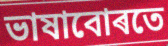
ভাষাবোৰতে